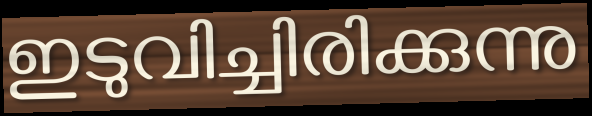
ഇടുവിച്ചിരിക്കുന്നു